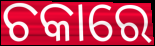
ଚକାରେ